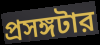
প্রসঙ্গটার